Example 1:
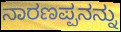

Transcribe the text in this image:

ನಾರಣಪ್ಪನನ್ನು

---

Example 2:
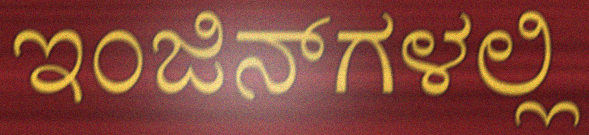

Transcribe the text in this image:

ಇಂಜಿನ್‌ಗಳಲ್ಲಿ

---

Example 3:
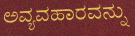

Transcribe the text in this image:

ಅವ್ಯವಹಾರವನ್ನು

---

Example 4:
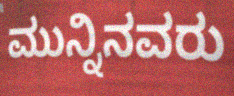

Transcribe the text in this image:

ಮುನ್ನಿನವರು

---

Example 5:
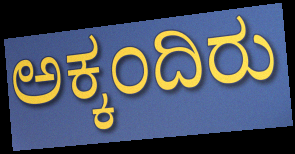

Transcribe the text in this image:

ಅಕ್ಕಂದಿರು